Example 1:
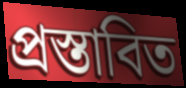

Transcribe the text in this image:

প্রস্তাবিত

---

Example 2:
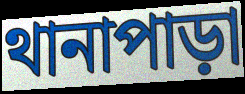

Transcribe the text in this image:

থানাপাড়া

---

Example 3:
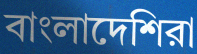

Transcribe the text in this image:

বাংলাদেশিরা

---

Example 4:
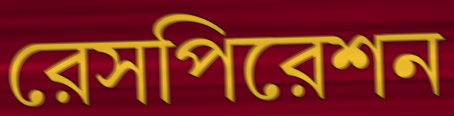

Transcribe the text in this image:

রেসপিরেশন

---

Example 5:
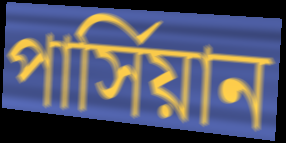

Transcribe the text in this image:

পার্সিয়ান